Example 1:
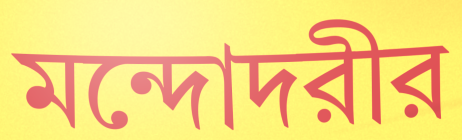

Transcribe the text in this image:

মন্দোদরীর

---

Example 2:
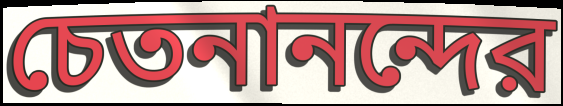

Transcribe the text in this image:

চেতনানন্দের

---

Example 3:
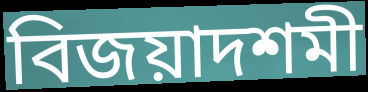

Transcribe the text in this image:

বিজয়াদশমী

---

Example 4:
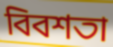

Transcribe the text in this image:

বিবশতা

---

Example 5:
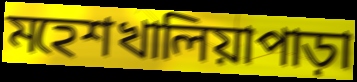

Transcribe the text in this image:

মহেশখালিয়াপাড়া